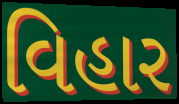
વિહાર